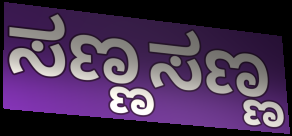
ಸಣ್ಣಸಣ್ಣ